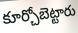
కూర్చోబెట్టారు